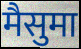
मैसुमा